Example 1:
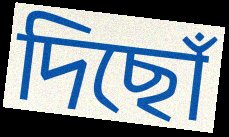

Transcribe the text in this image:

দিছোঁ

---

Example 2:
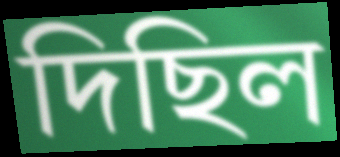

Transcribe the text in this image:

দিছিল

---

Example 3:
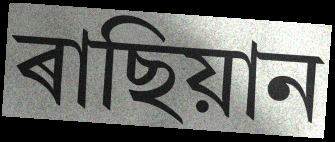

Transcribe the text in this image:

ৰাছিয়ান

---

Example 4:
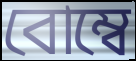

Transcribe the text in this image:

বোম্বে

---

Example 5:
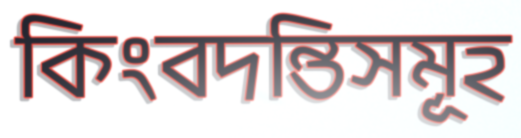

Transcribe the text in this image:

কিংবদন্তিসমূহ